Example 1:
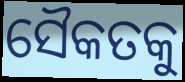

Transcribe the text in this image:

ସୈକତକୁ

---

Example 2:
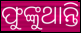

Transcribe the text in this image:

ଫୁଙ୍କୁଥାନ୍ତି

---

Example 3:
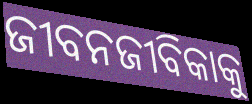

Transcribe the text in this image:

ଜୀବନଜୀବିକାକୁ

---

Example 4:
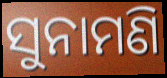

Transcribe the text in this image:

ସୁନାମଣି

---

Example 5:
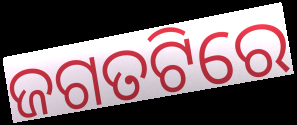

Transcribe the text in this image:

ଜଗତଟିରେ